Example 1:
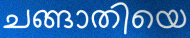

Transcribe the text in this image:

ചങ്ങാതിയെ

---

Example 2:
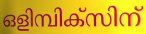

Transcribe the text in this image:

ഒളിമ്പിക്സിന്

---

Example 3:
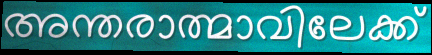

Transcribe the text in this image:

അന്തരാത്മാവിലേക്ക്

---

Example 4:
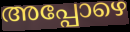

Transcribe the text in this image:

അപ്പോഴെ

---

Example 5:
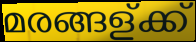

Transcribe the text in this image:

മരങ്ങള്ക്ക്